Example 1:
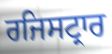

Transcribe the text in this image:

ਰਜਿਸਟ੍ਰਾਰ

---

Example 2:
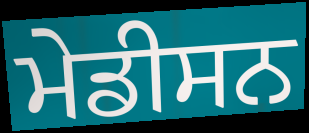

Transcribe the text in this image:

ਮੇਡੀਸਨ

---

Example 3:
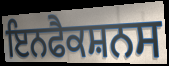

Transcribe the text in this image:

ਇਨਫੈਕਸ਼ਨਸ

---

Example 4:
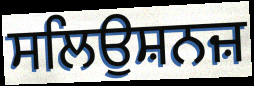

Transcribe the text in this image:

ਸਲਿਉਸ਼ਨਜ਼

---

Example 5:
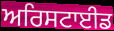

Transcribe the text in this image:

ਅਰਿਸਟਾਈਡ